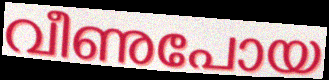
വീണുപോയ